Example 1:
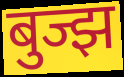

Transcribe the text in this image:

बुज्झ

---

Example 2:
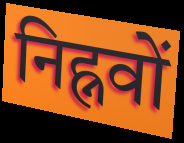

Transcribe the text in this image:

निह्नवों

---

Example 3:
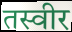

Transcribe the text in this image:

तस्‍वीर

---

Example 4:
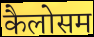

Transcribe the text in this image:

कैलोसम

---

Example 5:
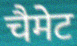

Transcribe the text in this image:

चैमेट